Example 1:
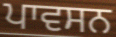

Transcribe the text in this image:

ਪਾਵਸਨ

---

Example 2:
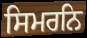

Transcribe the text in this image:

ਸਿਮਰਨਿ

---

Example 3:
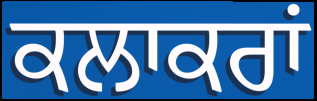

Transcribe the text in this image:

ਕਲਾਕਰਾਂ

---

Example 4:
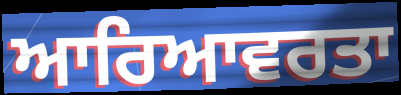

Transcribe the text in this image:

ਆਰਿਆਵਰਤਾ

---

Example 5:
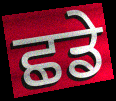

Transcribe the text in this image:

ਛਡੇ